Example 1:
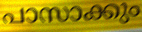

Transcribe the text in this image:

പാസാക്കും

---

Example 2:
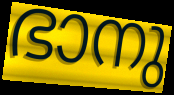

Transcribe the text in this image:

ഭാനു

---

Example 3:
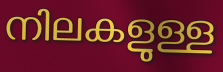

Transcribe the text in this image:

നിലകളുള്ള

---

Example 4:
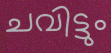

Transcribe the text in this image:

ചവിട്ടും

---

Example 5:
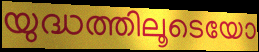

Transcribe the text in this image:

യുദ്ധത്തിലൂടെയോ